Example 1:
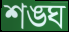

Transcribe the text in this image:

শঙ্ঘ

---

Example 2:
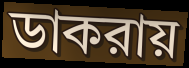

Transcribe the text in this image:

ডাকরায়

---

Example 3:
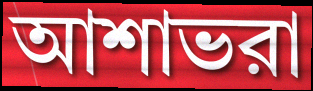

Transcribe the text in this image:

আশাভরা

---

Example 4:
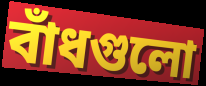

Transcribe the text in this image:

বাঁধগুলো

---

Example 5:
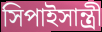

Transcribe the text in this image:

সিপাইসান্ত্রী